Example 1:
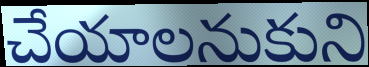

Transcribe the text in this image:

చేయాలనుకుని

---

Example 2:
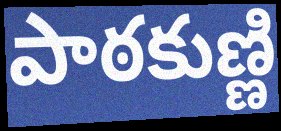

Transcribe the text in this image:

పాఠకుణ్ణి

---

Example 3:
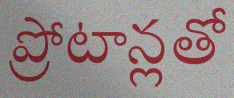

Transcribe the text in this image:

ప్రోటాన్లతో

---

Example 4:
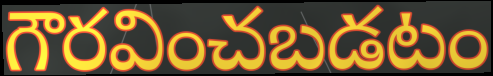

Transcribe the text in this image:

గౌరవించబడటం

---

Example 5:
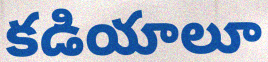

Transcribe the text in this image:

కడియాలూ